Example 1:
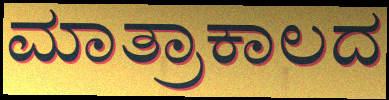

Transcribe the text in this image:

ಮಾತ್ರಾಕಾಲದ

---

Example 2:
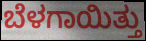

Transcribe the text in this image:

ಬೆಳಗಾಯಿತ್ತು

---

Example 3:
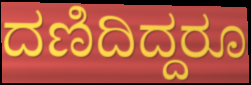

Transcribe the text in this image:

ದಣಿದಿದ್ದರೂ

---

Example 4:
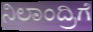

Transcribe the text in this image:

ನಿಲಾಂದ್ರಿಗೆ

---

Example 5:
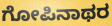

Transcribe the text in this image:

ಗೋಪಿನಾಥರ